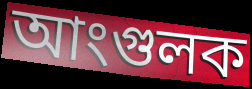
আংগুলক